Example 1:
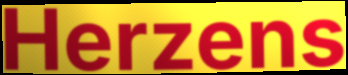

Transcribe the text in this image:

Herzens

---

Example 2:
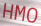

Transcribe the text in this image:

HMO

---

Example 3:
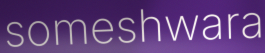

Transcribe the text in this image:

someshwara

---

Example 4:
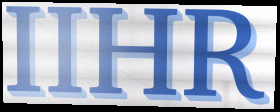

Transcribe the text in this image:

IIHR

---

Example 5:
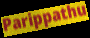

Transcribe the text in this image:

Parippathu